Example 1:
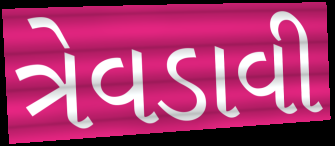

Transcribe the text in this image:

ત્રેવડાવી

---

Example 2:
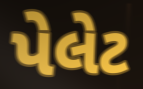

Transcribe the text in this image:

પેલેટ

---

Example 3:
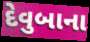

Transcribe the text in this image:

દેવુબાના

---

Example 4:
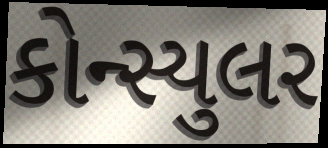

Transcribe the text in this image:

કોન્સ્યુલર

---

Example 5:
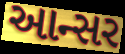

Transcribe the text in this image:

આન્સર